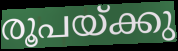
രൂപയ്ക്കു